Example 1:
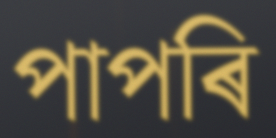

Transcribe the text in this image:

পাপৰি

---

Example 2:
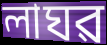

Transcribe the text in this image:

লাঘৱ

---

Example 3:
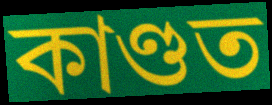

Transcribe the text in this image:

কাণ্ডত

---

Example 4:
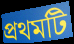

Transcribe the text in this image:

প্ৰথমটি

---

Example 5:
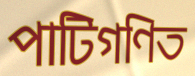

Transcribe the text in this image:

পাটিগণিত